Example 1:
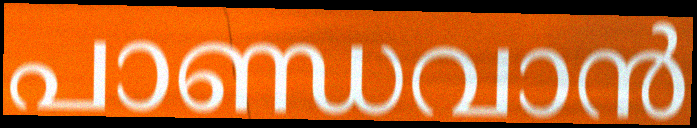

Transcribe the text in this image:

പാണ്ഡവാൻ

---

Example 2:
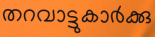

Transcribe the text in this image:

തറവാട്ടുകാർക്കു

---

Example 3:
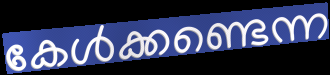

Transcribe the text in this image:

കേൾക്കണ്ടെന്ന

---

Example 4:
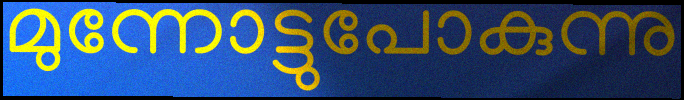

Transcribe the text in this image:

മുന്നോട്ടുപോകുന്നു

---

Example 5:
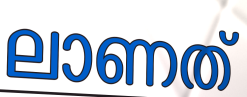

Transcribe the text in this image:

ലാണത്